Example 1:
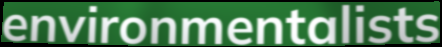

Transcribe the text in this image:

environmentalists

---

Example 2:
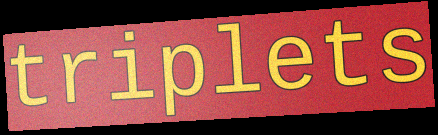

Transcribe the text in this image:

triplets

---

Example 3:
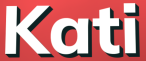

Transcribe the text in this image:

Kati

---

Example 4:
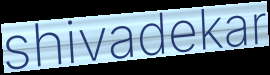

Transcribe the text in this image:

shivadekar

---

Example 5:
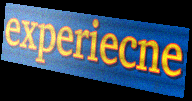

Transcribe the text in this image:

experiecne